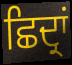
ਛਿਦ੍ਰਾਂ